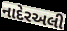
નાદેરઅલી